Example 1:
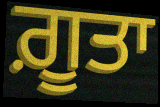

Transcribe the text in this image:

ਗ਼ੂਤਾ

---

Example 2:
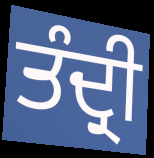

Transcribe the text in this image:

ਤੰਦ੍ਰੀ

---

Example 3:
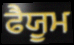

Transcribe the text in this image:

ਫੈਯੂਮ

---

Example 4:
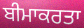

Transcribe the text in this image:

ਬੀਮਾਕਰਤਾ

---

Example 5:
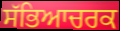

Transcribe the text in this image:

ਸੱਭਿਆਚਰਕ